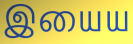
இயைய